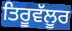
ਤਿਰੂਵੱਲੂਰ